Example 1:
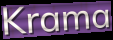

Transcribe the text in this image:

Krama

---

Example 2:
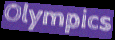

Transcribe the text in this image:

Olympics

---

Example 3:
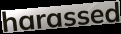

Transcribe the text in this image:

harassed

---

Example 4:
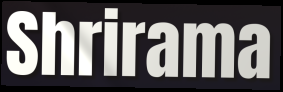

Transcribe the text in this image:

Shrirama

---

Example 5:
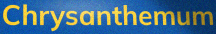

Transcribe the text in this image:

Chrysanthemum